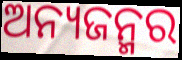
ଅନ୍ୟଜନ୍ମର